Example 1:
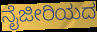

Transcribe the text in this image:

ನೈಜೀರಿಯದ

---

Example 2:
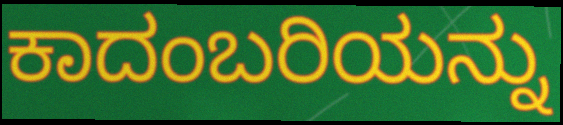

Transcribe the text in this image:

ಕಾದಂಬರಿಯನ್ನು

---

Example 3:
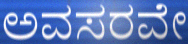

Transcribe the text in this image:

ಅವಸರವೇ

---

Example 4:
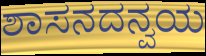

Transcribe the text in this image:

ಶಾಸನದನ್ವಯ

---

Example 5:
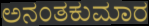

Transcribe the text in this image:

ಅನಂತಕುಮಾರ